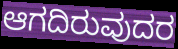
ಆಗದಿರುವುದರ